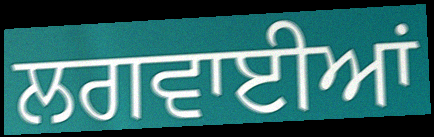
ਲਗਵਾਈਆਂ